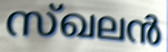
സ്ഖലൻ